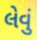
લેવું